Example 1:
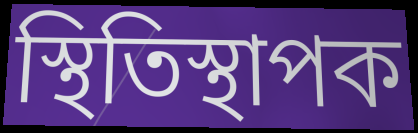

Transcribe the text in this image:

স্থিতিস্থাপক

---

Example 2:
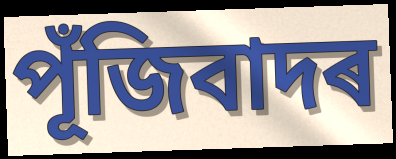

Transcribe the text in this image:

পূঁজিবাদৰ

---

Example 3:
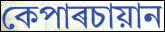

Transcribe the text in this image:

কেপাৰচায়ান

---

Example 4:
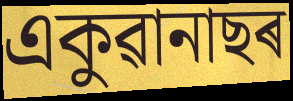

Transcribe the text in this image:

একুৱানাছৰ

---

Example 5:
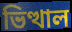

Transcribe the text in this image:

ভিত্থাল